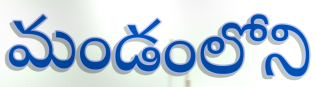
మండంలోని